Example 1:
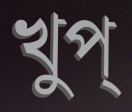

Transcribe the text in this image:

খুপ্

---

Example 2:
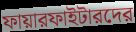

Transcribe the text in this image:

ফায়ারফাইটারদের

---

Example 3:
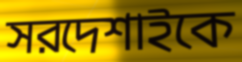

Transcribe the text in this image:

সরদেশাইকে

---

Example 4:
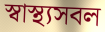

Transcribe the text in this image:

স্বাস্থ্যসবল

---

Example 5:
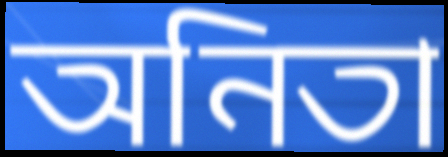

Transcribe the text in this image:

অনিতা